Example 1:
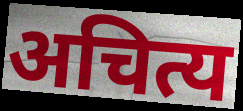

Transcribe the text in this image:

अचित्य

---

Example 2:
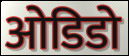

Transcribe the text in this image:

ओडिडो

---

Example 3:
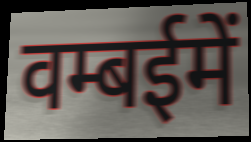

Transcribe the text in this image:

वम्बईमें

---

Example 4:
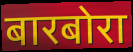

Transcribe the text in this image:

बारबोरा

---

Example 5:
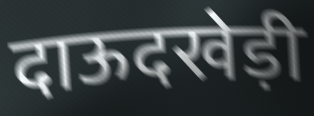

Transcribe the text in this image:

दाऊदखेड़ी